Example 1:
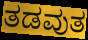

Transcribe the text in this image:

ತಡವುತ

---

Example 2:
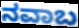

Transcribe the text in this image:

ನವಾಬ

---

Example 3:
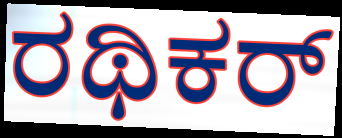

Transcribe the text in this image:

ರಥಿಕರ್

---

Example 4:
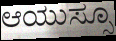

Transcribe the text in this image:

ಆಯುಸ್ಸೂ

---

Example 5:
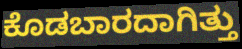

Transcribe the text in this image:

ಕೊಡಬಾರದಾಗಿತ್ತು